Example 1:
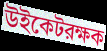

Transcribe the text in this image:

উইকেটরক্ষক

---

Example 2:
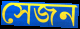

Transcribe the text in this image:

সেজন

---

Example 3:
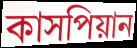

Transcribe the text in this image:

কাসপিয়ান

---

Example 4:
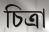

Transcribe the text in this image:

চিত্রা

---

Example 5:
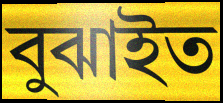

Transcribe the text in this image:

বুঝাইত